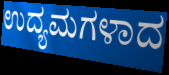
ಉದ್ಯಮಗಳಾದ